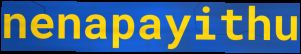
nenapayithu